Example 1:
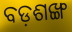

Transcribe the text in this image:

ବଡ଼ଶଙ୍ଖ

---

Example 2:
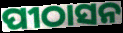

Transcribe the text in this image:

ପୀଠାସନ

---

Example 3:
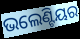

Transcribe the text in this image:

ଭଲେଣ୍ଟିୟର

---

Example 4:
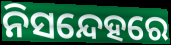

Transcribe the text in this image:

ନିସନ୍ଦେହରେ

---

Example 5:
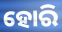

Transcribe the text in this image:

ହୋରି